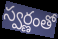
స్వర్ణంతో